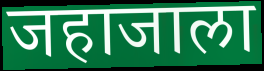
जहाजाला